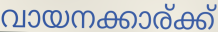
വായനക്കാര്ക്ക്